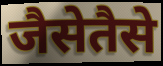
जैसेतैसे